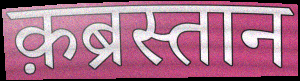
क़ब्रस्तान